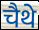
चैथे